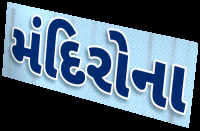
મંદિરોના